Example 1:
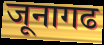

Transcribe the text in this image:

जूनागढ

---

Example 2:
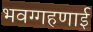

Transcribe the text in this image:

भवग्गहणाई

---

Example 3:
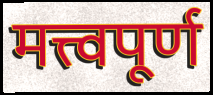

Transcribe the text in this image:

मत्त्वपूर्ण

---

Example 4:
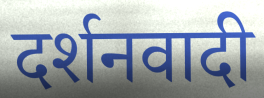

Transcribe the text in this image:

दर्शनवादी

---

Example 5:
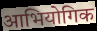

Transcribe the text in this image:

आभियोगिक